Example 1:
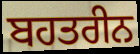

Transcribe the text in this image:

ਬਹਤਰੀਨ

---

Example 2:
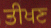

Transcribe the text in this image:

ਤੀਖਣ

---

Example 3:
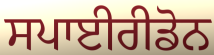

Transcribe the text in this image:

ਸਪਾਈਰੀਡੋਨ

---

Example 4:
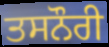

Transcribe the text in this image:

ਤਸਨੌਰੀ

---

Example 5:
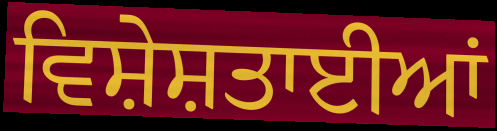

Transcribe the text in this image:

ਵਿਸ਼ੇਸ਼ਤਾਈਆਂ